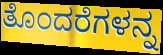
ತೊಂದರೆಗಳನ್ನ